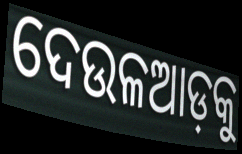
ଦେଉଳଆଡ଼କୁ